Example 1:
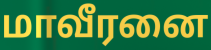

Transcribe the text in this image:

மாவீரனை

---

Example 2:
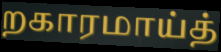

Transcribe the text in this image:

றகாரமாய்த்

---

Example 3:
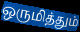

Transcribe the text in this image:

ஒருமித்தும்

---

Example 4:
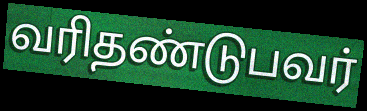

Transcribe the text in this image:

வரிதண்டுபவர்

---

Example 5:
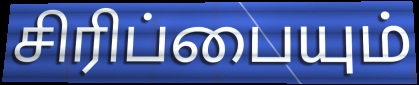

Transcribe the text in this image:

சிரிப்பையும்